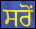
ਸਰੋਂ